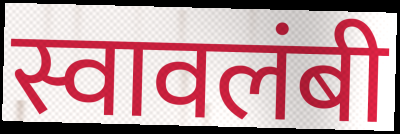
स्वावलंबी